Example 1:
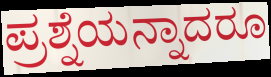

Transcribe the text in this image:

ಪ್ರಶ್ನೆಯನ್ನಾದರೂ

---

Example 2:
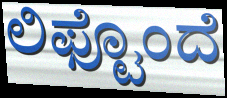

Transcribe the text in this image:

ಲಿಫ್ಟೊಂದೆ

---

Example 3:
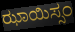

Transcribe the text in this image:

ಝಾಯಿಸ್ಸಂ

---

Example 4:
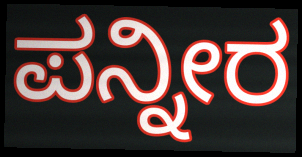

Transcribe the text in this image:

ಪನ್ನೀರ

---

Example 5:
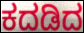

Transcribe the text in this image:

ಕದಡಿದ